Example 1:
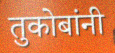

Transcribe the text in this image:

तुकोबांनी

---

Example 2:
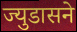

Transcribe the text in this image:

ज्युडासने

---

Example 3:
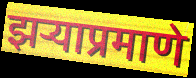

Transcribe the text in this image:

झऱ्याप्रमाणे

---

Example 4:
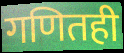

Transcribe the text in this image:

गणितही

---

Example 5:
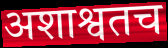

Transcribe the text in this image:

अशाश्वतच